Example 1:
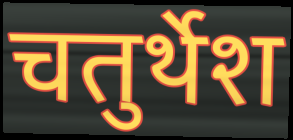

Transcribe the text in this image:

चतुर्थेश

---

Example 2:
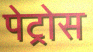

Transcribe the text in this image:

पेट्रोस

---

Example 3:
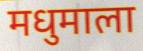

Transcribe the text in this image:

मधुमाला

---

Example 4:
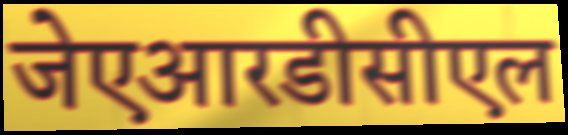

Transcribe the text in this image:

जेएआरडीसीएल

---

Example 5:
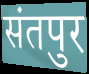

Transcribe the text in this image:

संतपुर